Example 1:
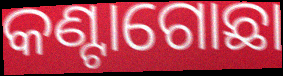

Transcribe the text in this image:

କଣ୍ଟାଗୋଛା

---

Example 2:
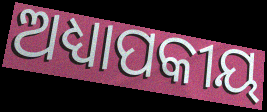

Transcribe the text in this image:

ଅଧ୍ୟାପକୀୟ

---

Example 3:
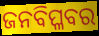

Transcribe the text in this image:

ଜନବିପ୍ଳବର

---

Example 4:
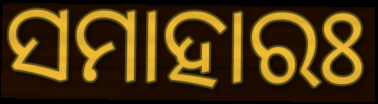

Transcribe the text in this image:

ସମାହାରଃ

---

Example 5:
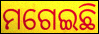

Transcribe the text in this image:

ମଗେଇଛି